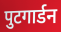
पुटगार्डन